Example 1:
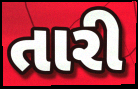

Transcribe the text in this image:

તારી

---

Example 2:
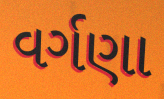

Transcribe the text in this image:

વર્ગણા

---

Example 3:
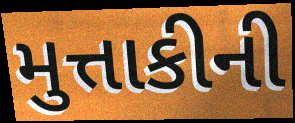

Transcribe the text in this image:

મુત્તાકીની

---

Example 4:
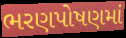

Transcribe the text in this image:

ભરણપોષણમાં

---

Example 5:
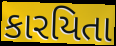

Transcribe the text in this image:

કારયિતા